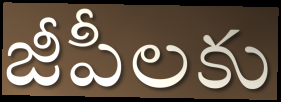
జీపీలకు